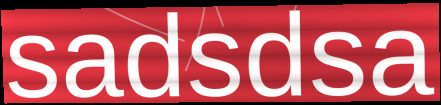
sadsdsa